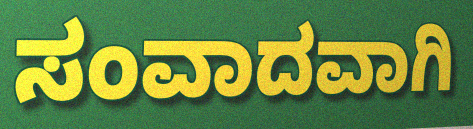
ಸಂವಾದವಾಗಿ